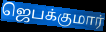
ஜெபக்குமார்